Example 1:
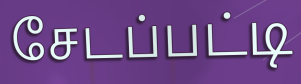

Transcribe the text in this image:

சேடப்பட்டி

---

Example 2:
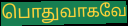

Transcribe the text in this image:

பொதுவாகவே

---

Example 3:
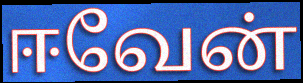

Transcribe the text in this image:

ஈவேன்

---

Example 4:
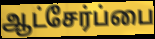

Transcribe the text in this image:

ஆட்சேர்ப்பை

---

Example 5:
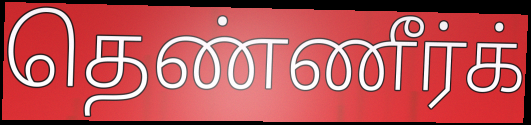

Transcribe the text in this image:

தெண்ணீர்க்